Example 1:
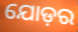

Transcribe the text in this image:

ଯୋଡ଼ର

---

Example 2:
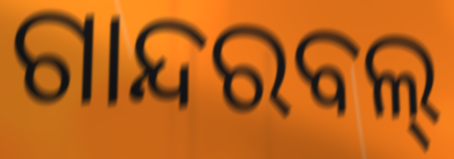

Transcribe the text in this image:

ଗାନ୍ଦରବଲ୍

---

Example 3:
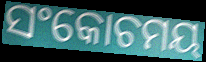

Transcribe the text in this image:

ସଂକୋଚମୟ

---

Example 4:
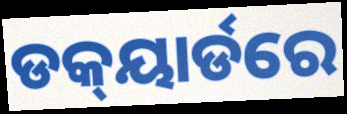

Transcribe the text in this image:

ଡକ୍‍ୟାର୍ଡରେ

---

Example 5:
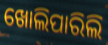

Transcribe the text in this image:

ଖୋଲିପାରିଲି